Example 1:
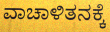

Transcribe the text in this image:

ವಾಚಾಳಿತನಕ್ಕೆ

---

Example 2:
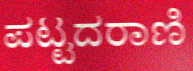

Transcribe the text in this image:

ಪಟ್ಟದರಾಣಿ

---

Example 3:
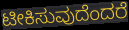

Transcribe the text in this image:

ಟೀಕಿಸುವುದೆಂದರೆ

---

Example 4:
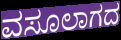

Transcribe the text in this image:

ವಸೂಲಾಗದ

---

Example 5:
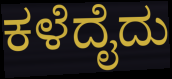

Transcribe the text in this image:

ಕಳೆದೈದು